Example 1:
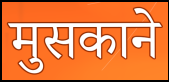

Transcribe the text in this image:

मुसकाने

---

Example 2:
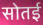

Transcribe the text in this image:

सोतई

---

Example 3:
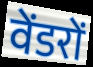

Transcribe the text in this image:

वेंडरों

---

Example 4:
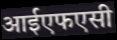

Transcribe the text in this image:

आईएफएसी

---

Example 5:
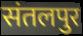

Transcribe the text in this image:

संतलपुर